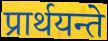
प्रार्थयन्ते